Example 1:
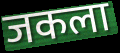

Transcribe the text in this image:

जकला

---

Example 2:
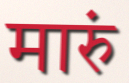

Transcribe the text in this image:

मारुं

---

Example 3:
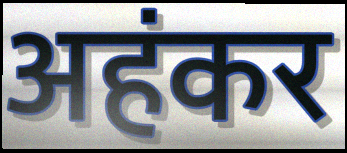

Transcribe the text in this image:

अहंकर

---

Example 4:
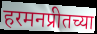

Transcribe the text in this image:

हरमनप्रीतच्या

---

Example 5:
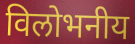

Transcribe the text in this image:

विलोभनीय